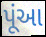
પૂંઆ